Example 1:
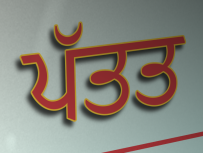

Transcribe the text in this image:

ਪੱਤਤ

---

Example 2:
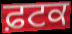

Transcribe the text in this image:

ਫ਼ਟਕ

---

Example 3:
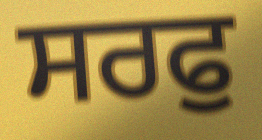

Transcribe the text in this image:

ਸਰਫੁ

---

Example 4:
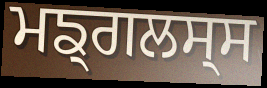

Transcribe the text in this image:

ਮਙ੍ਗਲਸ੍ਸ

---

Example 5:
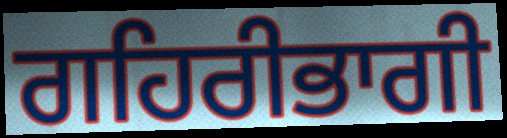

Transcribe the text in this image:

ਗਹਿਰੀਭਾਗੀ